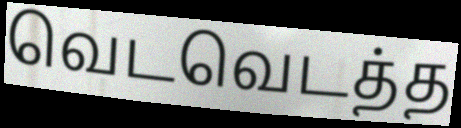
வெடவெடத்த